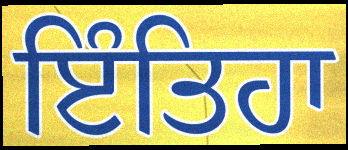
ਇੰਤਿਹਾ